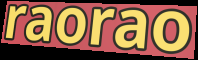
raorao